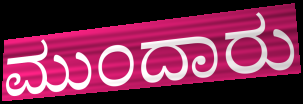
ಮುಂದಾರು